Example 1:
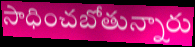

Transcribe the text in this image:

సాధించబోతున్నారు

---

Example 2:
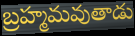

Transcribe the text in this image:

బ్రహ్మమవుతాడు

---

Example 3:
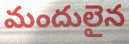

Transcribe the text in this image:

మందులైన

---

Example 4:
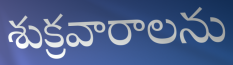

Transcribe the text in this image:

శుక్రవారాలను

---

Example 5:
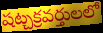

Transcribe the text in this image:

షట్చక్రవర్తులలో